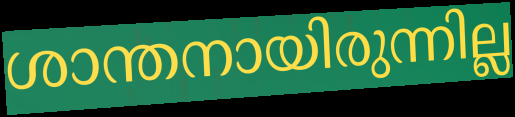
ശാന്തനായിരുന്നില്ല